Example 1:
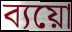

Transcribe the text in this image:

ব্যয়ো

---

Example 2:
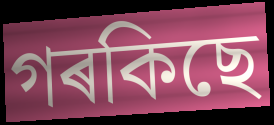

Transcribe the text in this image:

গৰকিছে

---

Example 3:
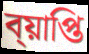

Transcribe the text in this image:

ব্য়াপ্তি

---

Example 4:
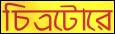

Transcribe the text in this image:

চিত্ৰটোৱে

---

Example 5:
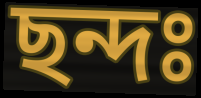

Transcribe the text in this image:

ছন্দঃ